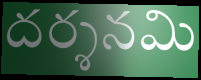
దర్శనమి